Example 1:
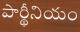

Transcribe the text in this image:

పార్థీనియం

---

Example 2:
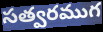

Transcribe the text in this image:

సత్వరముగ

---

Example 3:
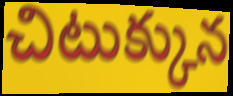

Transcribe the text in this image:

చిటుక్కున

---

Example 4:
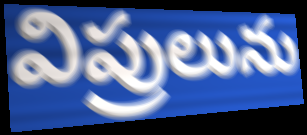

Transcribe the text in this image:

విప్రులును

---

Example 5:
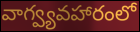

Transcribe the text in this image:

వాగ్వ్యవహారంలో